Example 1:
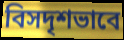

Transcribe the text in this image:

বিসদৃশভাবে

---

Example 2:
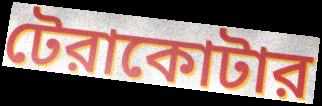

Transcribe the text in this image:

টেরাকোটার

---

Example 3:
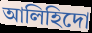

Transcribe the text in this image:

আলিহিদো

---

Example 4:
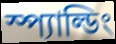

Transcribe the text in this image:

স্প্যাল্ডিং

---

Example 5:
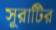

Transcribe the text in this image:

সূরাটির